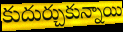
కుదుర్చుకున్నాయి